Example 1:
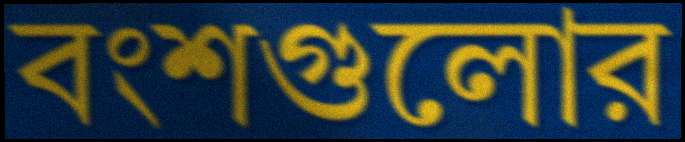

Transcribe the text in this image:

বংশগুলোর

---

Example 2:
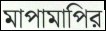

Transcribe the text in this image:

মাপামাপির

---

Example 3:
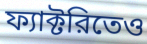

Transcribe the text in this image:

ফ্যাক্টরিতেও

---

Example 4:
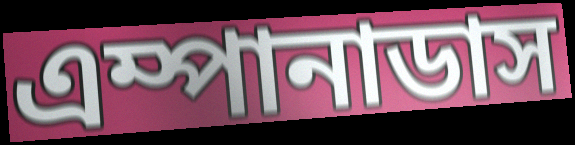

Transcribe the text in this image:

এম্পানাডাস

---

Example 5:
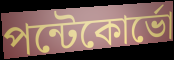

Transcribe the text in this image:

পন্টেকোর্ভো